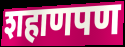
शहाणपण